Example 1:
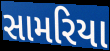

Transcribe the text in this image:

સામરિયા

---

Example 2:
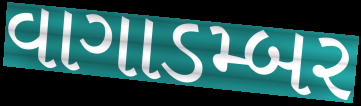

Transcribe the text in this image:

વાગાડમ્બર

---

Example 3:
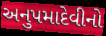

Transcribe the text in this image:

અનુપમાદેવીનો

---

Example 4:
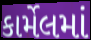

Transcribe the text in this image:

કાર્મેલમાં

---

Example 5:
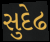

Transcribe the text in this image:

સુદેઢ